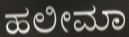
ಹಲೀಮಾ